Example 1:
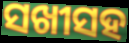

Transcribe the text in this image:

ସଖୀସହ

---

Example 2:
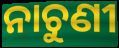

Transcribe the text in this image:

ନାଚୁଣୀ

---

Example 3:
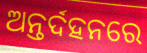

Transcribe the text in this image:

ଅନ୍ତର୍ଦହନରେ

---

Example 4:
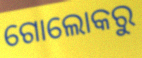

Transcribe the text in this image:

ଗୋଲୋକରୁ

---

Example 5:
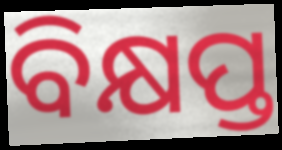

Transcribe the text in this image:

ବିକ୍ଷପ୍ତ